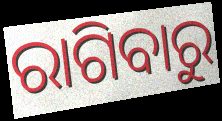
ରାଗିବାରୁ